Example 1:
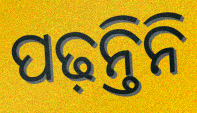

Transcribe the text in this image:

ପଢ଼ନ୍ତିନି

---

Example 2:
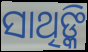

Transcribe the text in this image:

ସାଥିଙ୍କି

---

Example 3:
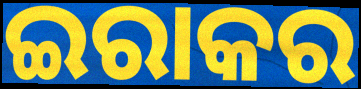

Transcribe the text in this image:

ଇରାକର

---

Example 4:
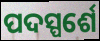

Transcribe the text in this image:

ପଦସ୍ପର୍ଶେ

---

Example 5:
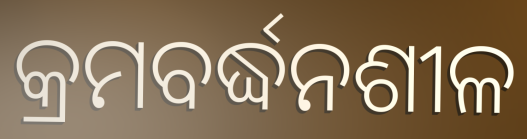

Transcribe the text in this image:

କ୍ରମବର୍ଦ୍ଧନଶୀଳ